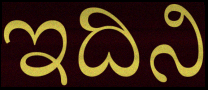
ಇದಿನಿ